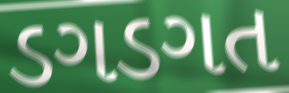
ડગડગત